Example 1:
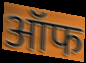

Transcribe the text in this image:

ऑफ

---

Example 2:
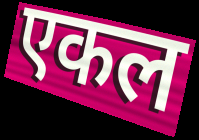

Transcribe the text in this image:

एकल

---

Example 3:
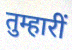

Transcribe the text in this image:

तुम्हारीं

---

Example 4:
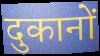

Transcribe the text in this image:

दुकानों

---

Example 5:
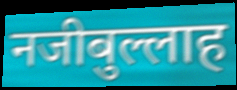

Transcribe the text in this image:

नजीबुल्लाह